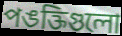
পঙক্তিগুলো